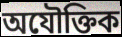
অযৌক্তিক